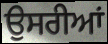
ਉਸਰੀਆਂ